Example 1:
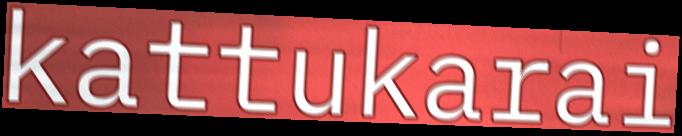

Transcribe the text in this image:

kattukarai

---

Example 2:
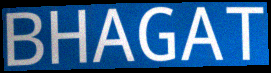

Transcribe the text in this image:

BHAGAT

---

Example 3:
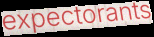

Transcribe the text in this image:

expectorants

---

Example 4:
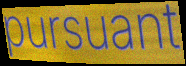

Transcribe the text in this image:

pursuant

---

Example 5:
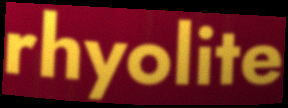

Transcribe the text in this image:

rhyolite